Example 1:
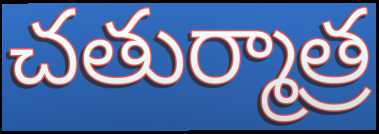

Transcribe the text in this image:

చతుర్మాత్ర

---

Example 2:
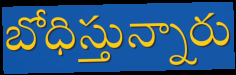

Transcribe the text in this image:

బోధిస్తున్నారు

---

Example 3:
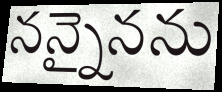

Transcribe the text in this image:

నన్నైనను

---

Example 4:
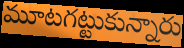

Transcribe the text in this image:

మూటగట్టుకున్నారు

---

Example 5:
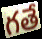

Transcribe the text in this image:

గతే